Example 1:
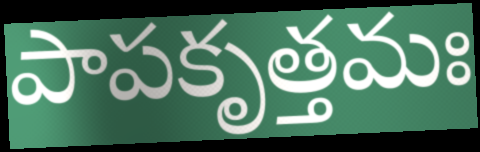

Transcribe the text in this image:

పాపకృత్తమః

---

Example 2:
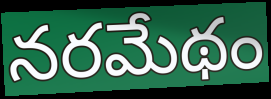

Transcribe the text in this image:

నరమేథం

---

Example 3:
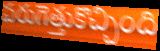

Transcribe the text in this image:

పరుగెత్తుకొచ్చింది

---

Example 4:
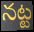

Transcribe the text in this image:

నట్ట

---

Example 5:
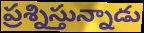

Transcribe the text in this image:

ప్రశ్నిస్తున్నాడు